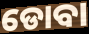
ଡୋବା